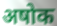
अषोक